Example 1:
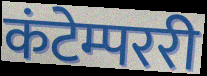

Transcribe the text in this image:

कंटेम्पररी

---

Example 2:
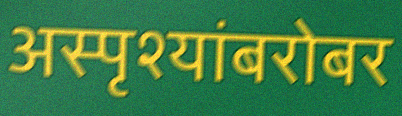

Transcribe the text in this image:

अस्पृश्यांबरोबर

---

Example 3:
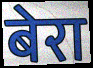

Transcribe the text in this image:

बेरा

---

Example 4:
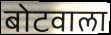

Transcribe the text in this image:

बोटवाला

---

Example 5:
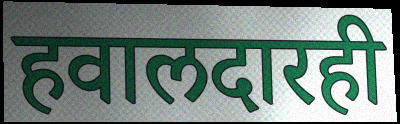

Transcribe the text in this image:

हवालदारही